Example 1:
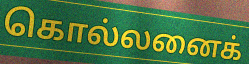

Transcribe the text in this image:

கொல்லனைக்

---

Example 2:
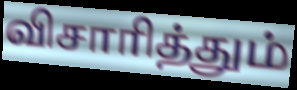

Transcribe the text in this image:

விசாரித்தும்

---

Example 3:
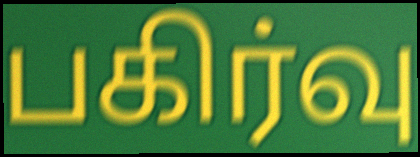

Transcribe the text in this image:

பகிர்வு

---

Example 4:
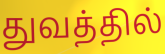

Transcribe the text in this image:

துவத்தில்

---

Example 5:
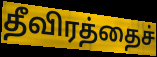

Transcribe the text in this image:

தீவிரத்தைச்